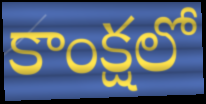
కాంక్షలో